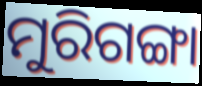
ମୁରିଗଙ୍ଗା